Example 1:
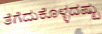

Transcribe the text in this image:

ತೆಗೆದುಕೊಳ್ಳದಷ್ಟು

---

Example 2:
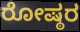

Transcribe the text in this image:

ರೋಷ್ಠರ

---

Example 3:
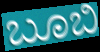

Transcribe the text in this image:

ಬೂಬಿ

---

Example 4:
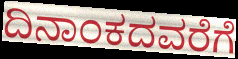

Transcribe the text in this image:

ದಿನಾಂಕದವರೆಗೆ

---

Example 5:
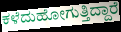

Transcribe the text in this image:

ಕಳೆದುಹೋಗುತ್ತಿದ್ದಾರೆ